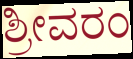
ಶ್ರೀವರಂ